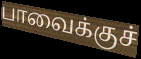
பாவைக்குச்